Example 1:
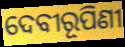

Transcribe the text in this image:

ଦେବୀରୂପିଣୀ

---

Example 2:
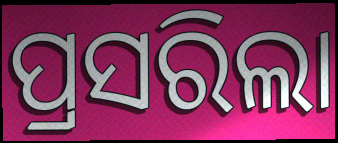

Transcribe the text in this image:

ପ୍ରସରିଲା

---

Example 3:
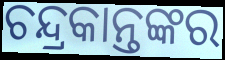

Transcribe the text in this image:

ଚନ୍ଦ୍ରକାନ୍ତଙ୍କର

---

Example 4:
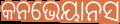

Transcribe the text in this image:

କନଭେୟାନସ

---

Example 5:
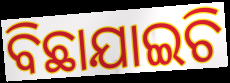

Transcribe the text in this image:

ବିଛାଯାଇଚି